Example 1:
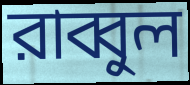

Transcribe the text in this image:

রাব্বুল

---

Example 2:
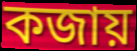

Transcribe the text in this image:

কজায়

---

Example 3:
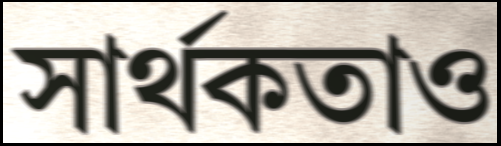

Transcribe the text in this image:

সার্থকতাও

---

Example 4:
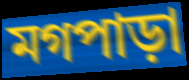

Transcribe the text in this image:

মগপাড়া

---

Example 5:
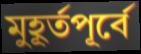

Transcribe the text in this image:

মুহূর্তপূর্বে